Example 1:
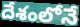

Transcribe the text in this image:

దేశంలోనే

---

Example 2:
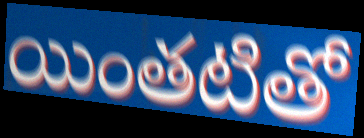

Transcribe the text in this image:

యింతటితో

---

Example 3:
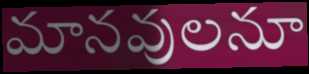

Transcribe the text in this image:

మానవులనూ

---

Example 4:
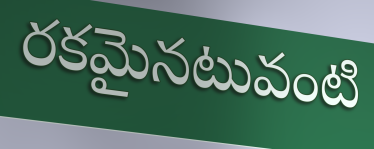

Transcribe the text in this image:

రకమైనటువంటి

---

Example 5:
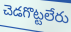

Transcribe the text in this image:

చెడగొట్టలేరు